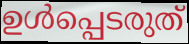
ഉൾപ്പെടരുത്